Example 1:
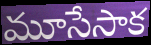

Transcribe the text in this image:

మూసేసాక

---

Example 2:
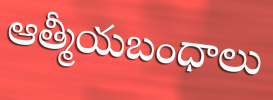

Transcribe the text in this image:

ఆత్మీయబంధాలు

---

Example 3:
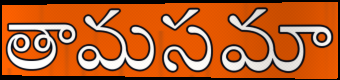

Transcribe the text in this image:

తామసమా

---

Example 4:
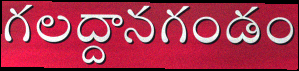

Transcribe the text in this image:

గలద్దానగండం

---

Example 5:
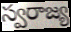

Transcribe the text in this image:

స్వరాజ్య